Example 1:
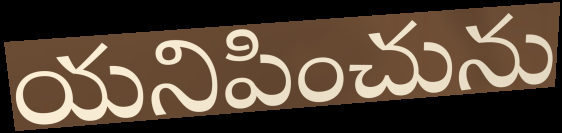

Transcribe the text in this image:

యనిపించును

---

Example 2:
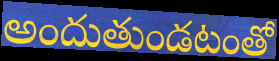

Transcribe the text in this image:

అందుతుండటంతో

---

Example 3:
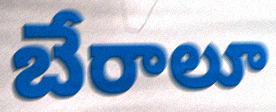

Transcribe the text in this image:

బేరాలూ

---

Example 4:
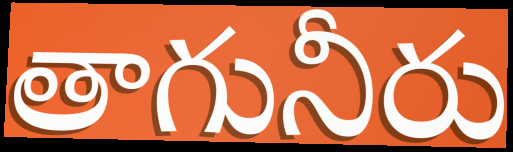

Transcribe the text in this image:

తాగునీరు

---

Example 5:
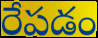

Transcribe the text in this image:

రేపడం